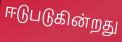
ஈடுபடுகின்றது